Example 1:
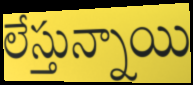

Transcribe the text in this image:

లేస్తున్నాయి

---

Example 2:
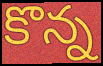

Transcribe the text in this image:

కొన్న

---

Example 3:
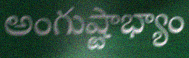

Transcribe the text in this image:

అంగుష్టాభ్యాం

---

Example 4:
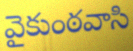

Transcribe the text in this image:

వైకుంఠవాసి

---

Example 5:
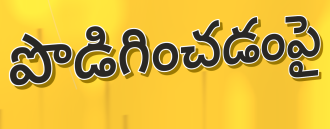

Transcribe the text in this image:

పొడిగించడంపై